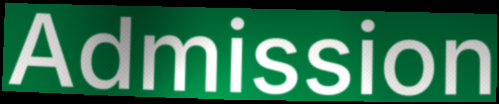
Admission